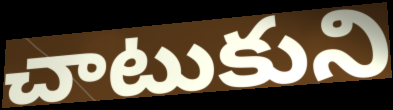
చాటుకుని